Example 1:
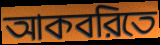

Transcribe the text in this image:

আকবরিতে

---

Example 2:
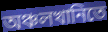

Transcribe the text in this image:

অঞ্চলখানিতে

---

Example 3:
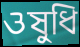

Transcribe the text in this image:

ওষুধি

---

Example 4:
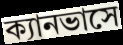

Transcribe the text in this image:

ক্যানভাসে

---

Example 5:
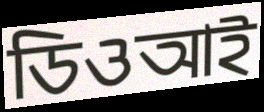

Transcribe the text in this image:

ডিওআই